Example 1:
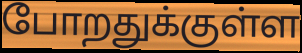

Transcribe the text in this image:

போறதுக்குள்ள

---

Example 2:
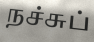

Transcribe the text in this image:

நச்சுப்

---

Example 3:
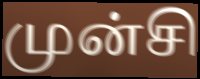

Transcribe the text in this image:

முன்சி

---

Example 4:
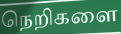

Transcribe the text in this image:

நெறிகளை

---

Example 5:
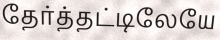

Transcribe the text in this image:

தேர்த்தட்டிலேயே